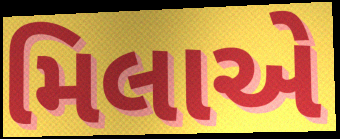
મિલાએ